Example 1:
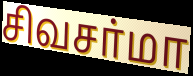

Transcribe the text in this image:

சிவசர்மா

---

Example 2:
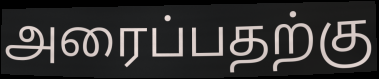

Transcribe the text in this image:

அரைப்பதற்கு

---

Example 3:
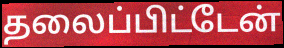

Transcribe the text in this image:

தலைப்பிட்டேன்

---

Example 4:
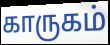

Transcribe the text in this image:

காருகம்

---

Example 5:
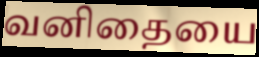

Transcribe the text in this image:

வனிதையை